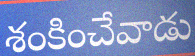
శంకించేవాడు